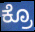
ಕ್ರೊ